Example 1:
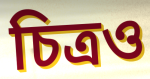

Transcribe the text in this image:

চিত্রও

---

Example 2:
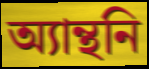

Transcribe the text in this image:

অ্যান্থনি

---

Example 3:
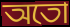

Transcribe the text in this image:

অতো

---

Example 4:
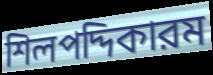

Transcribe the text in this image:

শিলপদ্দিকারম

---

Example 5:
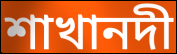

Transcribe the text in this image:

শাখানদী